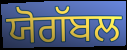
ਯੋਗੱਬਲ